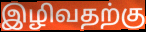
இழிவதற்கு